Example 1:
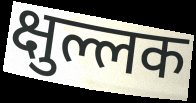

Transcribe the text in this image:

क्षुल्लक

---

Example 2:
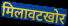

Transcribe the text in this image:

मिलावटखोर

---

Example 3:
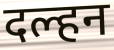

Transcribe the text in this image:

दल्हन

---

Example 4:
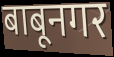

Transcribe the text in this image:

बाबूनगर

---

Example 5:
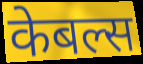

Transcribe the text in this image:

केबल्स